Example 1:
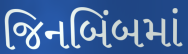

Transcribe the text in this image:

જિનબિંબમાં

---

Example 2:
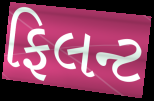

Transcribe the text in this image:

ફિલન્ટ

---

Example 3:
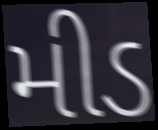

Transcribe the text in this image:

મીડ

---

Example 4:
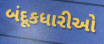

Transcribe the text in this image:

બંદૂકધારીઓ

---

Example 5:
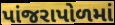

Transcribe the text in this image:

પાંજરાપોળમાં